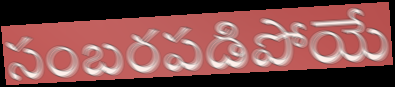
సంబరపడిపోయే